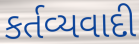
કર્તવ્યવાદી